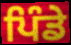
ਪਿੰਡੇ